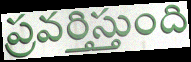
ప్రవర్తిస్తుంది